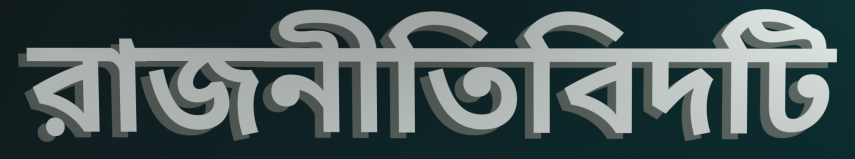
রাজনীতিবিদটি